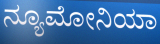
ನ್ಯೂಮೋನಿಯಾ